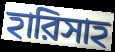
হারিসাহ